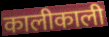
कालीकाली